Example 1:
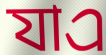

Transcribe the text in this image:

যাএ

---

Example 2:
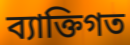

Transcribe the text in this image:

ব্যাক্তিগত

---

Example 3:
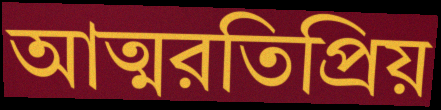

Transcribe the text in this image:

আত্মরতিপ্রিয়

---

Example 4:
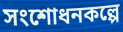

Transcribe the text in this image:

সংশোধনকল্পে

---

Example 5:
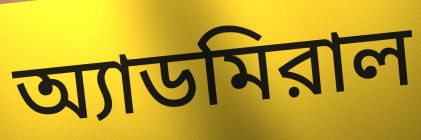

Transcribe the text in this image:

অ্যাডমিরাল